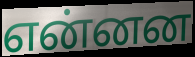
என்னன